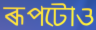
ৰূপটোও